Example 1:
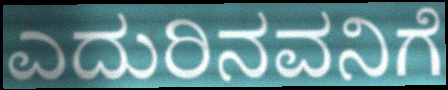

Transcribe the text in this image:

ಎದುರಿನವನಿಗೆ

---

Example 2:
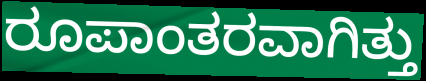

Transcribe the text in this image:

ರೂಪಾಂತರವಾಗಿತ್ತು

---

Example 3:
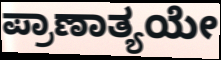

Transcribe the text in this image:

ಪ್ರಾಣಾತ್ಯಯೇ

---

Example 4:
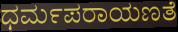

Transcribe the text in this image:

ಧರ್ಮಪರಾಯಣತೆ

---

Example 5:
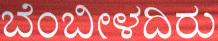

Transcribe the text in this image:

ಬೆಂಬೀಳದಿರು